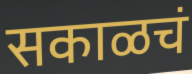
सकाळचं